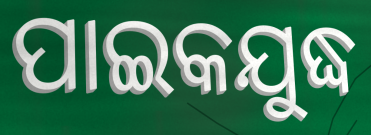
ପାଇକଯୁଦ୍ଧ